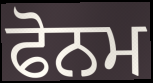
ਫੋਨਮ